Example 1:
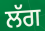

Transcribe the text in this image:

ਲੱਗ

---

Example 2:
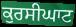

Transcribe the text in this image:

ਕੁਰਸੀਘਾਟ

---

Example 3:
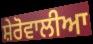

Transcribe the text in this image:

ਸ਼ੇਰੋਵਾਲੀਆ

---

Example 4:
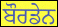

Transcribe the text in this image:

ਬੌਰਡੇਨ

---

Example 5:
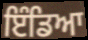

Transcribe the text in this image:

ਇੰਡਿਆ